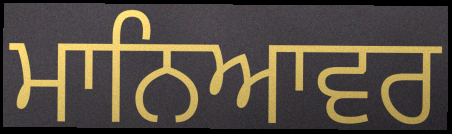
ਮਾਨਿਆਵਰ